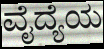
ವೈದ್ಯೆಯ